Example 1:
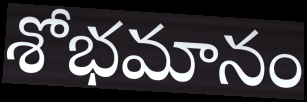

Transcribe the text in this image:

శోభమానం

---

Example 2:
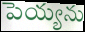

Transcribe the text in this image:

పెయ్యను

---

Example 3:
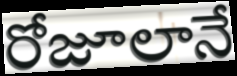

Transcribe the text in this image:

రోజూలానే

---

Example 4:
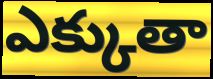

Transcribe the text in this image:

ఎక్కుతా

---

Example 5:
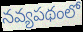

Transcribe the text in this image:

నవ్యపథంలో